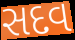
સદવ